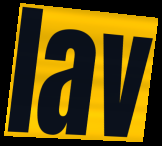
Iav